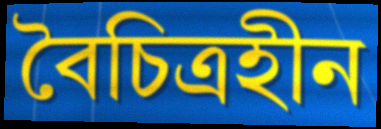
বৈচিত্রহীন